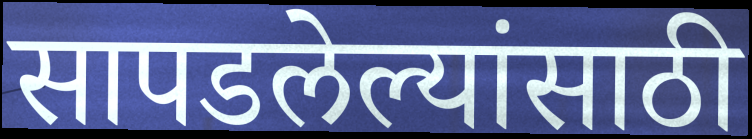
सापडलेल्यांसाठी